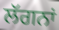
ਲੱਗਨਾਂ